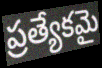
ప్రత్యేకమై